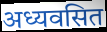
अध्यवसित